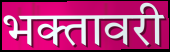
भक्तावरी